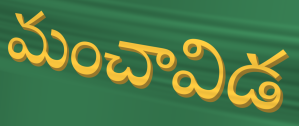
మంచావిడ